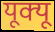
यूक्यू